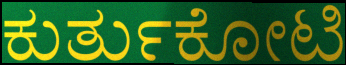
ಕುರ್ತುಕೋಟಿ